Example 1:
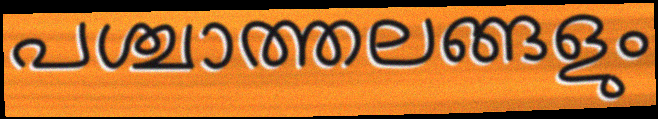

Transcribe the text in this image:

പശ്ചാത്തലങ്ങളും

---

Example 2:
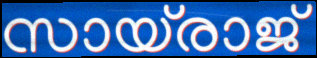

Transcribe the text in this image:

സായ്രാജ്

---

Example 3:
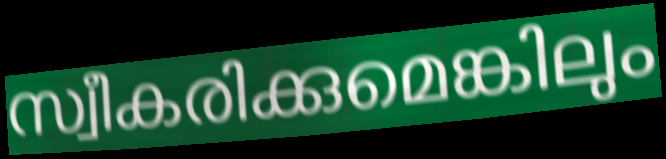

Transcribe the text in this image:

സ്വീകരിക്കുമെങ്കിലും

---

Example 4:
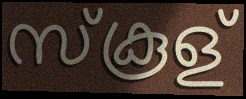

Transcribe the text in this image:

സ്കൂള്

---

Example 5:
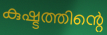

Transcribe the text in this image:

കുഷ്ടത്തിന്റെ